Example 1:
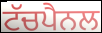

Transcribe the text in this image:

ਟੱਚਪੈਨਲ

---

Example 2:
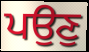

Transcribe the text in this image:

ਪਉਣੁ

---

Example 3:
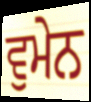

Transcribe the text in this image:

ਵੁਮੇਨ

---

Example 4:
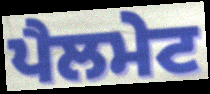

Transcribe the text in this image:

ਪੈਲਮੇਟ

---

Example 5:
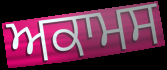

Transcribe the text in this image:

ਅਕਾਮਸ